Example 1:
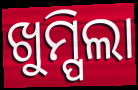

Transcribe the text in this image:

ଖୁମ୍ପିଲା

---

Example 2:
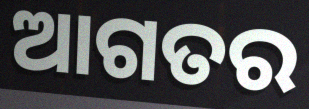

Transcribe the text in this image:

ଆଗତର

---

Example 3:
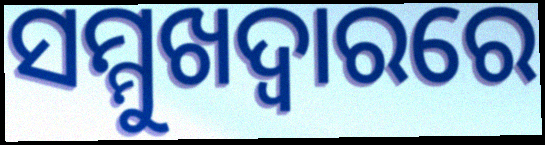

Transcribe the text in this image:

ସମ୍ମୁଖଦ୍ୱାରରେ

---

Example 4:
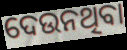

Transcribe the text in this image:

ଦେଉନଥିବା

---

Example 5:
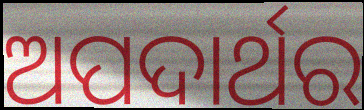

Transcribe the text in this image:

ଅପଦାର୍ଥର